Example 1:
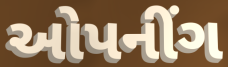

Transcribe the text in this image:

ઓપનીંગ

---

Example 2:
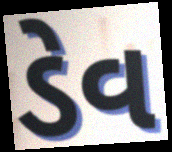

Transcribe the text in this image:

ડેવ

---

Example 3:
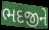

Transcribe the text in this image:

ભદજીને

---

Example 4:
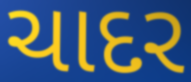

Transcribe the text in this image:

ચાદર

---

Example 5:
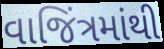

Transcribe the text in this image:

વાજિંત્રમાંથી